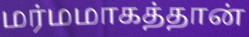
மர்மமாகத்தான்